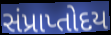
સંપ્રાપ્તોદય